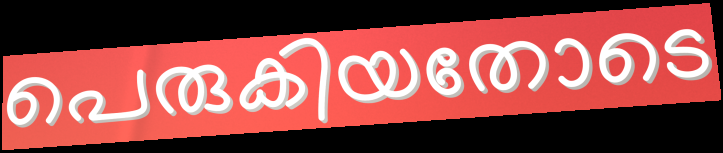
പെരുകിയതോടെ